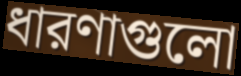
ধারণাগুলো